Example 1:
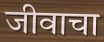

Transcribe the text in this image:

जीवाचा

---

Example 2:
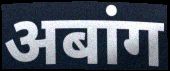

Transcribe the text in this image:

अबांग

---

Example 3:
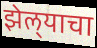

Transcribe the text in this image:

झेल्याचा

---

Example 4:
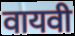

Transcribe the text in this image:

वायवी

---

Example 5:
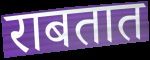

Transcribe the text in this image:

राबतात